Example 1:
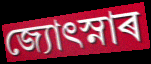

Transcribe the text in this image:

জ্যোৎস্নাৰ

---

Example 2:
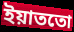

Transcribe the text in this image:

ইয়াততো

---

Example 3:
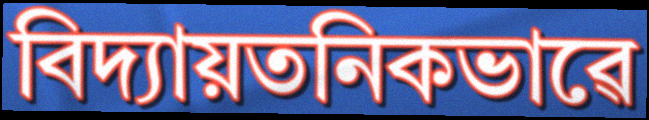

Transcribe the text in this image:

বিদ্য়ায়তনিকভাৱে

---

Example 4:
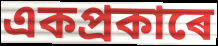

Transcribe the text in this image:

একপ্ৰকাৰে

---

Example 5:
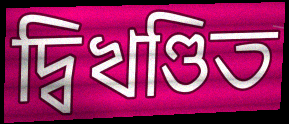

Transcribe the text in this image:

দ্বিখণ্ডিত